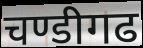
चण्डीगढ